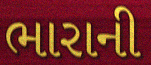
ભારાની